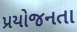
પ્રયોજનતા